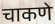
चाकणे